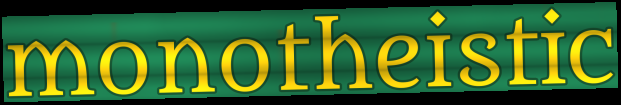
monotheistic